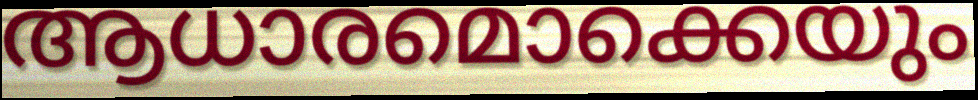
ആധാരമൊക്കെയും